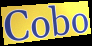
Cobo